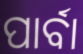
ପାର୍ବା